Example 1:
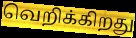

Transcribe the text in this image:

வெறிக்கிறது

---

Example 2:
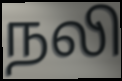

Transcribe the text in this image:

நலி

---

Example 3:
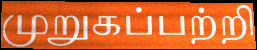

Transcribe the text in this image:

முறுகப்பற்றி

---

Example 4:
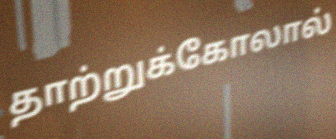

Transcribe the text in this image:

தாற்றுக்கோலால்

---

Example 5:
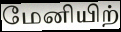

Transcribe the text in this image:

மேனியிற்